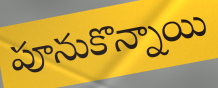
పూనుకొన్నాయి